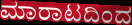
ಮಾರಾಟದಿಂದ